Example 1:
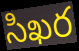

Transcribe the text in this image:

సిఖర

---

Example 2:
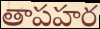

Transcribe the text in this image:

తాపహర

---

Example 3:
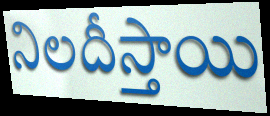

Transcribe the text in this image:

నిలదీస్తాయి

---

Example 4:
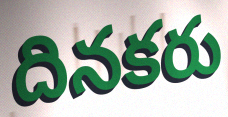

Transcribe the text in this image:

దినకరు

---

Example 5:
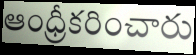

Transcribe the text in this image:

ఆంధ్రీకరించారు